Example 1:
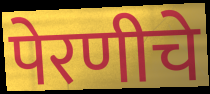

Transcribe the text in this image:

पेरणीचे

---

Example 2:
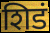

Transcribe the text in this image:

शिडं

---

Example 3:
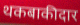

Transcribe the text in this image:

थकबाकीदार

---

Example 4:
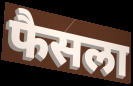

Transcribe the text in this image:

फैसला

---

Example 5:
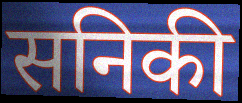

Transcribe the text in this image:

सनिकी